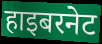
हाइबरनेट